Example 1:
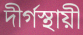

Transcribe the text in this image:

দীর্গস্থায়ী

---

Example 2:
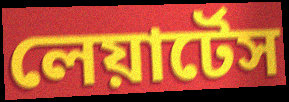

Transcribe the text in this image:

লেয়ার্টেস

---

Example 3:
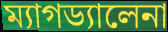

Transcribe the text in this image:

ম্যাগড্যালেনা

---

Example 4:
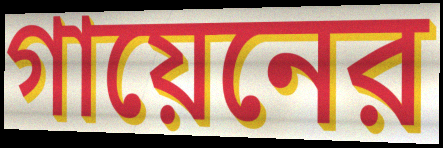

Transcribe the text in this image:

গায়েনের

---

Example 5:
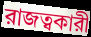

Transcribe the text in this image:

রাজত্বকারী